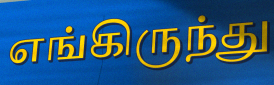
எங்கிருந்து